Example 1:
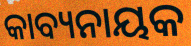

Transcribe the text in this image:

କାବ୍ୟନାୟକ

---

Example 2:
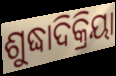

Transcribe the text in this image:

ଶୁଦ୍ଧାଦିକ୍ରିୟା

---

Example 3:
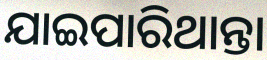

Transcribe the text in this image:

ଯାଇପାରିଥାନ୍ତା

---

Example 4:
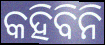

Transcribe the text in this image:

କହିବିନି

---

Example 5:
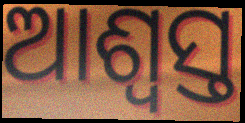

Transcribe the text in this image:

ଆଶ୍ବସ୍ତ